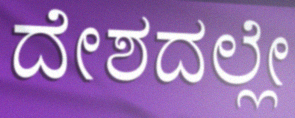
ದೇಶದಲ್ಲೇ